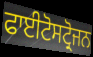
ਫਾਈਟੋਸਟ੍ਰੋਜਨ